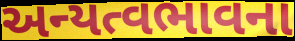
અન્યત્વભાવના